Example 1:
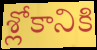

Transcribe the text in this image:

శ్లోకానికి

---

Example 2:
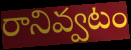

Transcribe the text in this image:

రానివ్వటం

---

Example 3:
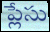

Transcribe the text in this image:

ప్లేసు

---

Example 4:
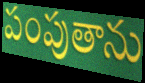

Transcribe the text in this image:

పంపుతాను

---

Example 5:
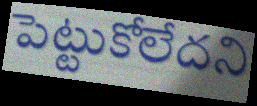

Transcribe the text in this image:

పెట్టుకోలేదని